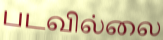
படவில்லை